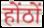
होंठों